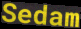
Sedam